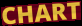
CHART